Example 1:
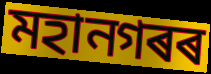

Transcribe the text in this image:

মহানগৰৰ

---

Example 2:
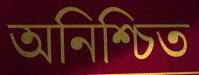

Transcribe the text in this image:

অনিশ্চিত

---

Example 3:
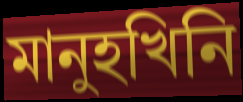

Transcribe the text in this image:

মানুহখিনি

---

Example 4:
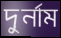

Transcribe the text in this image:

দুৰ্নাম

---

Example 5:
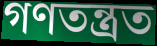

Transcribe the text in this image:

গণতন্ত্ৰত